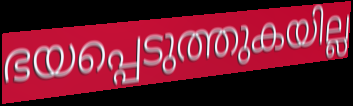
ഭയപ്പെടുത്തുകയില്ല